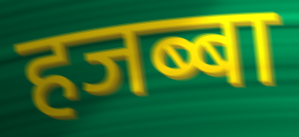
हजब्बा